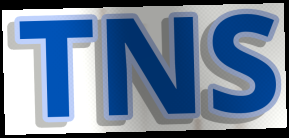
TNS